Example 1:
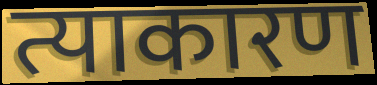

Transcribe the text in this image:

त्याकारण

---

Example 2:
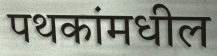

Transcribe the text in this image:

पथकांमधील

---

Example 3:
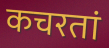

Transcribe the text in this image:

कचरतां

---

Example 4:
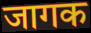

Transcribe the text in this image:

जागक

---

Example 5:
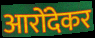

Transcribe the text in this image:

आरोंदेकर